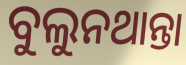
ବୁଲୁନଥାନ୍ତା